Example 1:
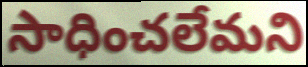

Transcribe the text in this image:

సాధించలేమని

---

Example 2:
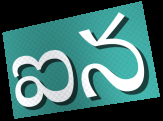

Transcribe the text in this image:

ఐన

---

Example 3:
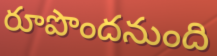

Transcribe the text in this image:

రూపొందనుంది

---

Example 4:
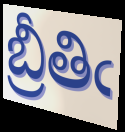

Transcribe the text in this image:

బ్రీతిఁ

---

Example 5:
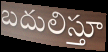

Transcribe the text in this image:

బదులిస్తూ